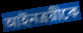
আইনত্রয়ীকে